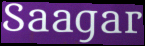
Saagar